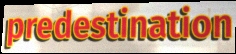
predestination